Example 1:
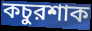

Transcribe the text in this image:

কচুরশাক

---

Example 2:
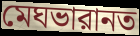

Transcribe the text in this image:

মেঘভারানত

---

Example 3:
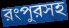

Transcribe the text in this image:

রংপুরসহ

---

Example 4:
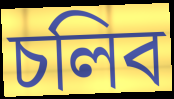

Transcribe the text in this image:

চলিব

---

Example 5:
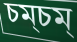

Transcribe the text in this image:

চম্চম্